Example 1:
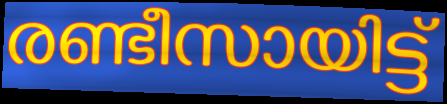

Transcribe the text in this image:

രണ്ടീസായിട്ട്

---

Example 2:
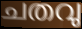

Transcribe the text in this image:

ചതവു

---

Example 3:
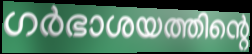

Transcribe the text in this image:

ഗർഭാശയത്തിന്റെ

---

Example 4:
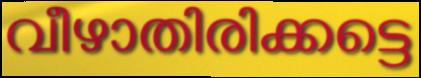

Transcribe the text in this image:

വീഴാതിരിക്കട്ടെ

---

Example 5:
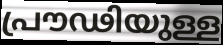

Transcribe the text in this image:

പ്രൗഢിയുള്ള